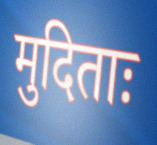
मुदिताः